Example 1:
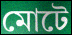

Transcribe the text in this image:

মোটে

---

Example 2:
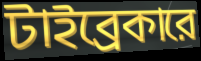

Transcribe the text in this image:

টাইব্রেকারে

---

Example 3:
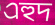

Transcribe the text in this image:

এহুদ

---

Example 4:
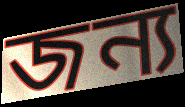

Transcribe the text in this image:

জন্য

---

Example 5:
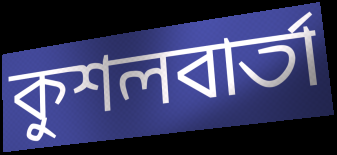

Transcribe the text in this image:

কুশলবার্তা